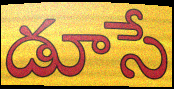
డూసే